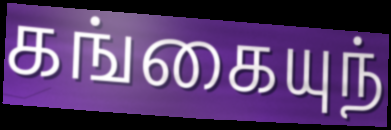
கங்கையுந்